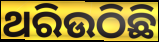
ଥରିଉଠିଛି